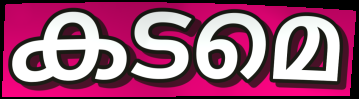
കടമെ